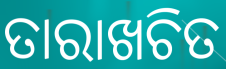
ତାରାଖଚିତ